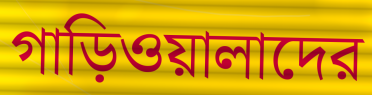
গাড়িওয়ালাদের